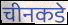
चीनकडे